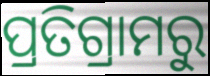
ପ୍ରତିଗ୍ରାମରୁ